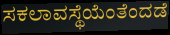
ಸಕಲಾವಸ್ಥೆಯೆಂತೆಂದಡೆ